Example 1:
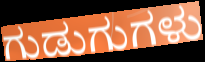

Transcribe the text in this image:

ಗುಡುಗುಗಳು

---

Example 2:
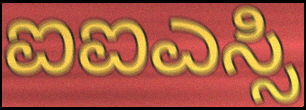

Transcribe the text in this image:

ಐಐಎಸ್ಸಿ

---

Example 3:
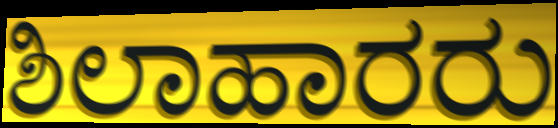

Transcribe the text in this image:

ಶಿಲಾಹಾರರು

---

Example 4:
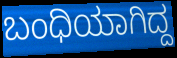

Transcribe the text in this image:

ಬಂಧಿಯಾಗಿದ್ದ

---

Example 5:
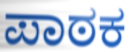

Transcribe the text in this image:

ಪಾಠಕ